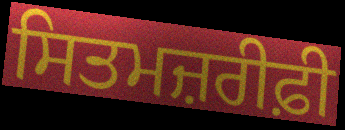
ਸਿਤਮਜ਼ਰੀਫ਼ੀ